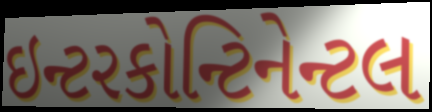
ઇન્ટરકોન્ટિનેન્ટલ